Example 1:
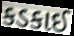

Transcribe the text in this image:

કડકાઈ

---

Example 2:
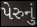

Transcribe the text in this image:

પેરુનું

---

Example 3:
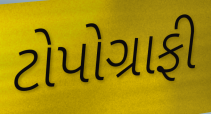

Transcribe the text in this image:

ટોપોગ્રાફી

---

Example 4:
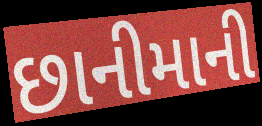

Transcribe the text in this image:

છાનીમાની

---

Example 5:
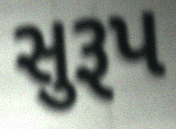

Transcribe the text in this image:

સુરૂપ